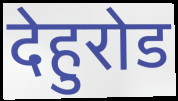
देहुरोड